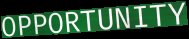
OPPORTUNITY